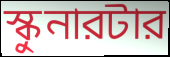
স্কুনারটার